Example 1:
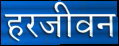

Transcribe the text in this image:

हरजीवन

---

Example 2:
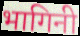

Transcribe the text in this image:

भागिनी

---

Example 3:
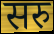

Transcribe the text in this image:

सरु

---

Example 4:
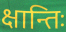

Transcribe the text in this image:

क्षान्तिः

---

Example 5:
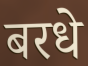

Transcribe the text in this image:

बरधे